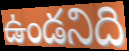
ఉండనిది